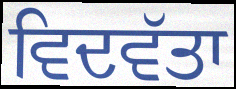
ਵਿਦਵੱਤਾ